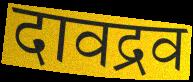
दावद्रव